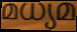
മധ്യമ